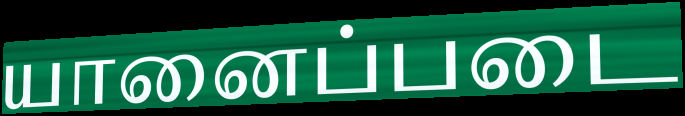
யானைப்படை